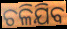
ଚଳିଯିବ